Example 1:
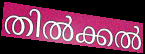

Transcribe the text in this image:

തിൽക്കൽ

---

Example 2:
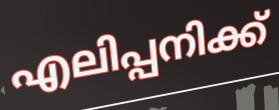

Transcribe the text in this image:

എലിപ്പനിക്ക്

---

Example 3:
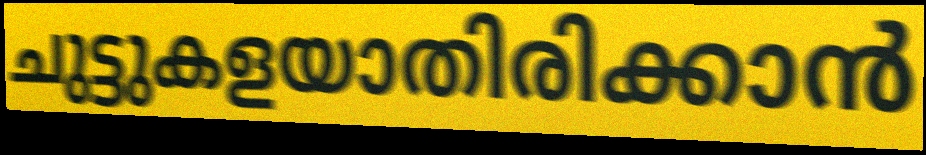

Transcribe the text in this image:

ചുട്ടുകളയാതിരിക്കാൻ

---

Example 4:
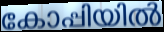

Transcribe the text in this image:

കോപ്പിയിൽ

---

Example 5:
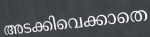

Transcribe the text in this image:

അടക്കിവെക്കാതെ